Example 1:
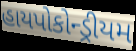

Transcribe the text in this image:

હાયપોકોન્ડ્રીયમ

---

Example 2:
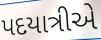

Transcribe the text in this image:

પદયાત્રીએ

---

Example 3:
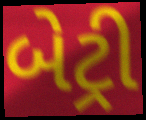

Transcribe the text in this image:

બેટ્રી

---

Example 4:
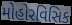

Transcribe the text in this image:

મોહોરવિસિક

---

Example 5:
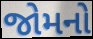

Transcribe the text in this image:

જોમનો